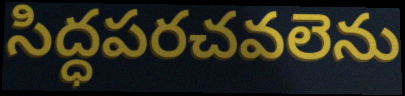
సిద్ధపరచవలెను